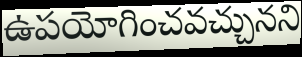
ఉపయోగించవచ్చునని